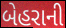
બેહરાની